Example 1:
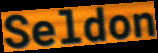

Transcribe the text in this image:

Seldon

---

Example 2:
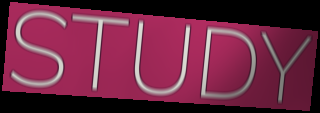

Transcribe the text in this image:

STUDY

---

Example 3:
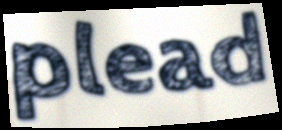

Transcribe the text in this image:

plead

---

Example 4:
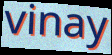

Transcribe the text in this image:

vinay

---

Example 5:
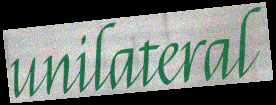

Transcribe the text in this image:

unilateral